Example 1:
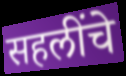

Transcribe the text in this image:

सहलींचे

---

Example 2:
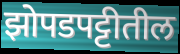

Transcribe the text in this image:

झोपडपट्टीतील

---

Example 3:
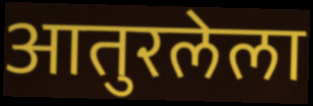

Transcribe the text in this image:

आतुरलेला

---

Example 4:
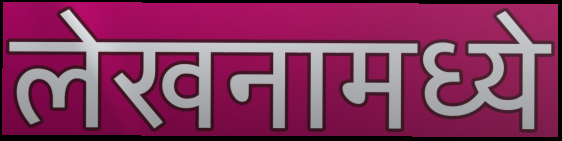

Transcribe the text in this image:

लेखनामध्ये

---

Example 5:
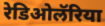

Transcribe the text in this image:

रेडिओलॅरिया